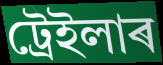
ট্ৰেইলাৰ